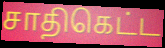
சாதிகெட்ட